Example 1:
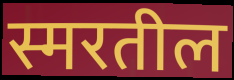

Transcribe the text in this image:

स्मरतील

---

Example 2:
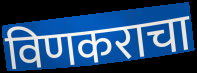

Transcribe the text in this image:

विणकराचा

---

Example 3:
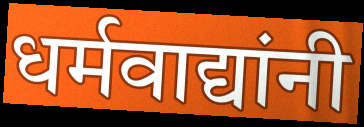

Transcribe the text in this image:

धर्मवाद्यांनी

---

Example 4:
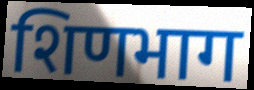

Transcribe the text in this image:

शिणभाग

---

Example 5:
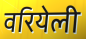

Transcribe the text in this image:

वरियेली